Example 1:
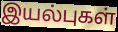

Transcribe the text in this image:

இயல்புகள்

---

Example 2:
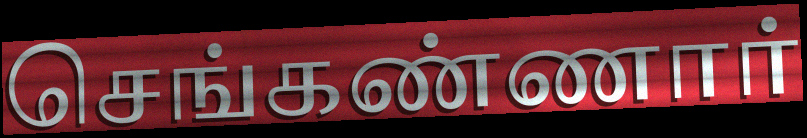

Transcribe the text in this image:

செங்கண்ணார்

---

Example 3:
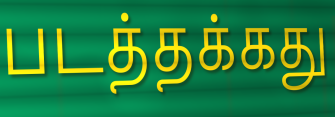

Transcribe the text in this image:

படத்தக்கது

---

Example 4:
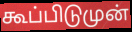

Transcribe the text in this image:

கூப்பிடுமுன்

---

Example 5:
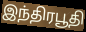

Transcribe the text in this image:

இந்திரபூதி